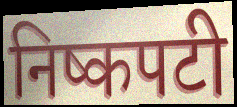
निष्कपटी